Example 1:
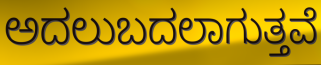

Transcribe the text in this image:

ಅದಲುಬದಲಾಗುತ್ತವೆ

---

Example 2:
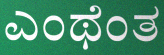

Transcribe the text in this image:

ಎಂಥೆಂತ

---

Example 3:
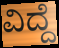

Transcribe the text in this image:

ವಿದ್ದೆ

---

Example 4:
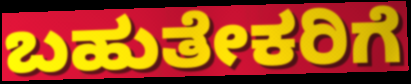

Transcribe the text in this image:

ಬಹುತೇಕರಿಗೆ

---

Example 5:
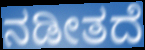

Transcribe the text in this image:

ನಡೀತದೆ